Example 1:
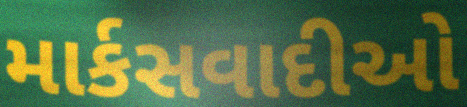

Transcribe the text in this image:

માર્કસવાદીઓ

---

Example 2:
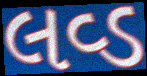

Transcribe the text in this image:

લવ્ડ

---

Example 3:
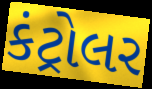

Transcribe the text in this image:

કંટ્રોલર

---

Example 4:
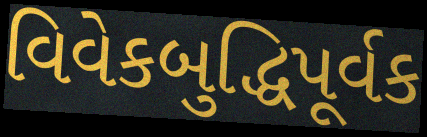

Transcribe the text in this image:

વિવેકબુદ્ધિપૂર્વક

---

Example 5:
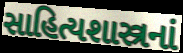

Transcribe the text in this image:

સાહિત્યશાસ્ત્રનાં